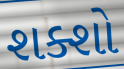
શક્શો